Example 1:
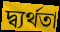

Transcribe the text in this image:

দ্ব্যর্থতা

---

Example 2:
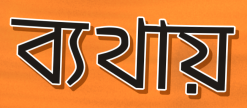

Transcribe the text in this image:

ব্যথায়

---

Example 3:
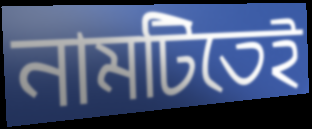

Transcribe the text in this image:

নামটিতেই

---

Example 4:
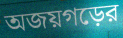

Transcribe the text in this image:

অজয়গড়ের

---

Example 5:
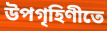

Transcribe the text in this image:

উপগৃহিণীতে